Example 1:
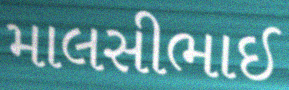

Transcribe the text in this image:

માલસીભાઈ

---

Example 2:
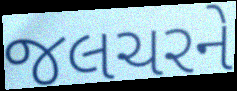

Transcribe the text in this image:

જલચરને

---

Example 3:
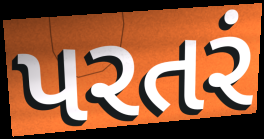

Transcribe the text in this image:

પરતરં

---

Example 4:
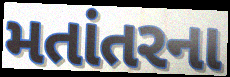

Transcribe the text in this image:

મતાંતરના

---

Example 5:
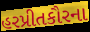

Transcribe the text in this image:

હરપ્રીતકૌરના